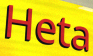
Heta